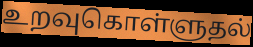
உறவுகொள்ளுதல்